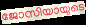
ജോസിയായുടെ